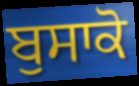
ਬੁਸਾਕੋ